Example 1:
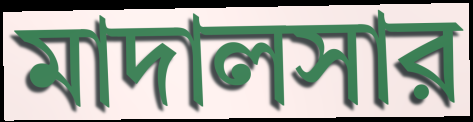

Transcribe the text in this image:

মাদালসার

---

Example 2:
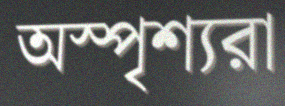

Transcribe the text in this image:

অস্পৃশ্যরা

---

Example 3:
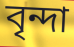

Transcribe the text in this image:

বৃন্দা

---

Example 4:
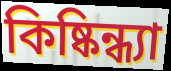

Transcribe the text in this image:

কিষ্কিন্ধ্যা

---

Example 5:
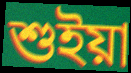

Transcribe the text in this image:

শুইয়া